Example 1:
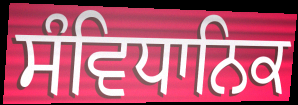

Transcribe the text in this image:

ਸੰਵਿਧਾਨਿਕ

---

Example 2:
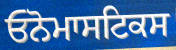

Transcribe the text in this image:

ਓਨੋਮਾਸਟਿਕਸ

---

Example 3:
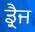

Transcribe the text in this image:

ਡ੍ਰੈਜ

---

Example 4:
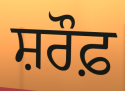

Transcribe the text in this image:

ਸ਼ਰੌਫ਼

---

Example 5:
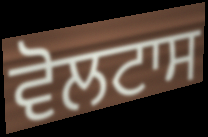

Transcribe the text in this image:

ਵੋਲਟਾਸ